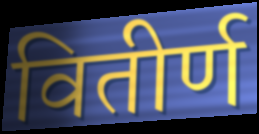
वितीर्ण